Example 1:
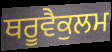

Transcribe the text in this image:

ਥਰੂਵੈਕੁਲਮ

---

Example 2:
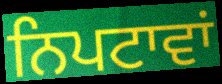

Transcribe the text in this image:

ਨਿਪਟਾਵਾਂ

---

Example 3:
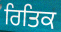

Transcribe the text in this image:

ਰਿਤਿਕ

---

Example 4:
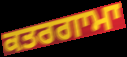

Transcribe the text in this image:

ਕਤਰਗਾਮਾ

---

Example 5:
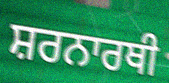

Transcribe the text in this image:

ਸ਼ਰਨਾਰਥੀ